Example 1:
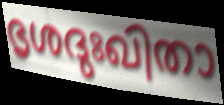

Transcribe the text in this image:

ഭൃശദുഃഖിതാ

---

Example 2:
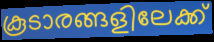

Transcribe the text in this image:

കൂടാരങ്ങളിലേക്ക്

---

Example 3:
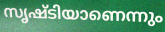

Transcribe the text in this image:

സൃഷ്ടിയാണെന്നും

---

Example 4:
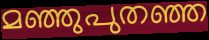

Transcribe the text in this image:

മഞ്ഞുപുതഞ്ഞ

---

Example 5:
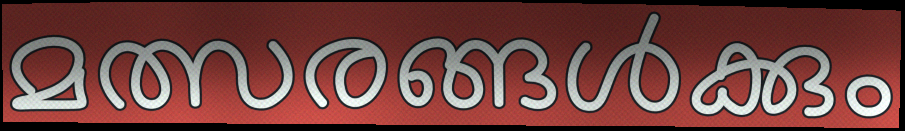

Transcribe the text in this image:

മത്സരങ്ങൾക്കും